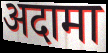
अदामा